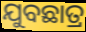
ଯୁବଛାତ୍ର